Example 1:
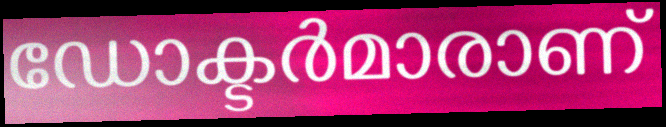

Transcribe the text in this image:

ഡോക്ടർമാരാണ്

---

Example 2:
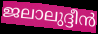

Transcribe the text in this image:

ജലാലുദ്ദീൻ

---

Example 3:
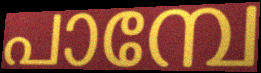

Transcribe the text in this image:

പാമ്പേ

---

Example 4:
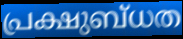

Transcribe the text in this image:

പ്രക്ഷുബ്ധത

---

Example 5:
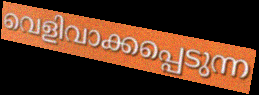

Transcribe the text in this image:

വെളിവാക്കപ്പെടുന്ന